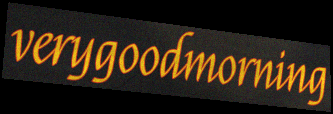
verygoodmorning